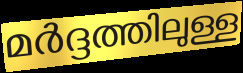
മർദ്ദത്തിലുള്ള